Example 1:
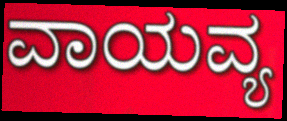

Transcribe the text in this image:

ವಾಯವ್ಯ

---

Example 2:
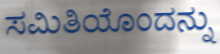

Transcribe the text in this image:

ಸಮಿತಿಯೊಂದನ್ನು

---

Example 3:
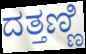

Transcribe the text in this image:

ದತ್ತಣ್ಣಿ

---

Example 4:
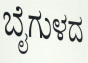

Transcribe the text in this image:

ಬೈಗುಳದ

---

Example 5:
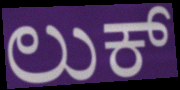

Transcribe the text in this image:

ಲುಕ್